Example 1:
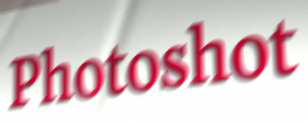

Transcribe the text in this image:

Photoshot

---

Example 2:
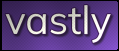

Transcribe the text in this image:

vastly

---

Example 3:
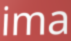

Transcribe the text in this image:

ima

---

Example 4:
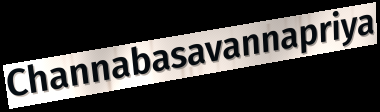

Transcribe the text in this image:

Channabasavannapriya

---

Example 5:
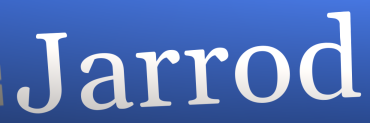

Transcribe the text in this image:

Jarrod